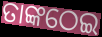
ତାଙ୍କଠେଇ